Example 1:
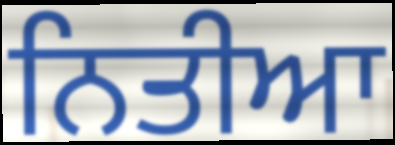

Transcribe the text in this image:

ਨਿਤੀਆ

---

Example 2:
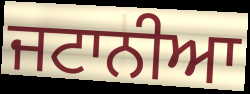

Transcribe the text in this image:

ਜਟਾਨੀਆ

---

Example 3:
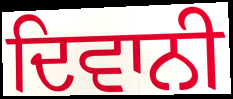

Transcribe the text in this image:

ਦਿਵਾਨੀ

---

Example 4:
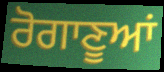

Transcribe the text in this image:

ਰੋਗਾਣੂਆਂ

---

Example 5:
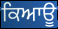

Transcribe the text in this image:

ਕਿਆਊ